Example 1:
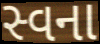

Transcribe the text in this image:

સ્વના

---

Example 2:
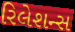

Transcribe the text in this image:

રિલેશન્સ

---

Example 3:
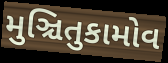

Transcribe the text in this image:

મુઞ્ચિતુકામોવ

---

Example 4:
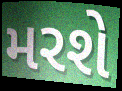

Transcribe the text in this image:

મરશે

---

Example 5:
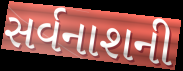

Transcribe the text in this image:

સર્વનાશની